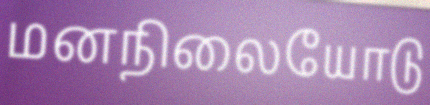
மனநிலையோடு